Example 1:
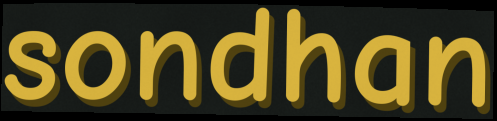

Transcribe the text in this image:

sondhan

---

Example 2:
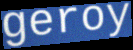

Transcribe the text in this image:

geroy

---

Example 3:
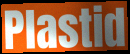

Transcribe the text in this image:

Plastid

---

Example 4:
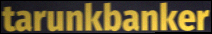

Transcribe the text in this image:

tarunkbanker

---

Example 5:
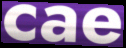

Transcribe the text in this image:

cae